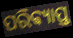
ପରିଵ୍ୟାପ୍ତ